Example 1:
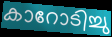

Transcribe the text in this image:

കാറോടിച്ചു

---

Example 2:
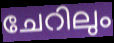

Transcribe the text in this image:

ചേറിലും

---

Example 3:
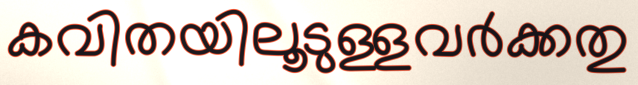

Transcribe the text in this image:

കവിതയിലൂടുള്ളവർക്കതു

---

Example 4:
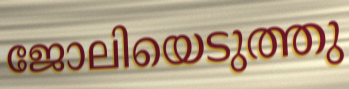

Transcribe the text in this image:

ജോലിയെടുത്തു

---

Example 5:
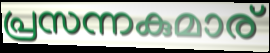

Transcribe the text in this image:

പ്രസന്നകുമാര്